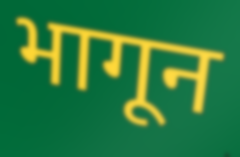
भागून